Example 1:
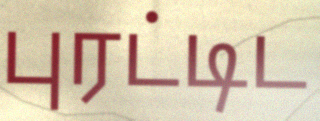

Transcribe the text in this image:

புரட்டிட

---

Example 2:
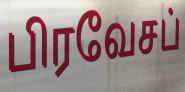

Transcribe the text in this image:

பிரவேசப்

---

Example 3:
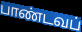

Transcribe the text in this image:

பாண்டவப்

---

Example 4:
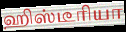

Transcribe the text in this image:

ஹிஸ்டீரியா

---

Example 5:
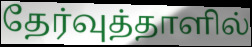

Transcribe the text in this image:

தேர்வுத்தாளில்